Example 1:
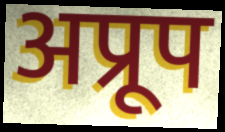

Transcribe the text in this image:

अप्रूप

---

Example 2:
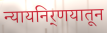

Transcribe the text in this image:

न्यायनिर्णयातून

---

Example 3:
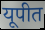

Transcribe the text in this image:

यूपीत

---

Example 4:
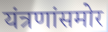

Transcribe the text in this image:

यंत्रणांसमोर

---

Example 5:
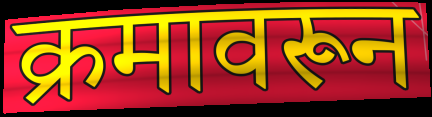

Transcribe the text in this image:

क्रमावरून